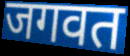
जगवत